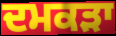
ਦਮਕੜਾ